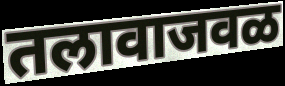
तलावाजवळ